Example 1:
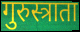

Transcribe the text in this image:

गुरुस्त्राता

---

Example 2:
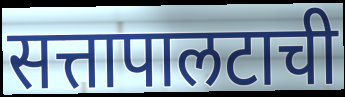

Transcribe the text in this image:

सत्तापालटाची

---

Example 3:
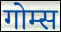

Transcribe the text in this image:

गोम्स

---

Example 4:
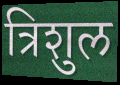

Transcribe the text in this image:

त्रिशुल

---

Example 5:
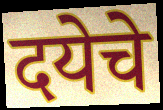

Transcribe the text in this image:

दयेचे